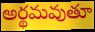
అర్థమవుతూ